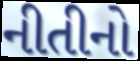
નીતીનો